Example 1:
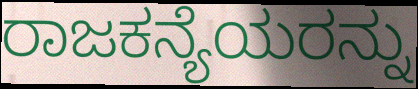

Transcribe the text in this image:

ರಾಜಕನ್ಯೆಯರನ್ನು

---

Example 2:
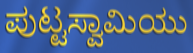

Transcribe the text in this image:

ಪುಟ್ಟಸ್ವಾಮಿಯು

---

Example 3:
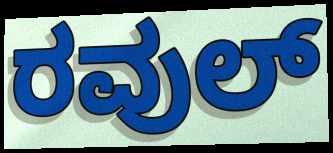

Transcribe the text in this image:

ರವುಲ್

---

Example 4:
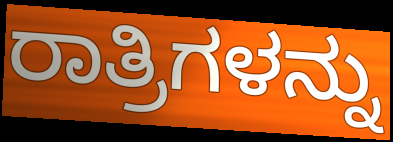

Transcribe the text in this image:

ರಾತ್ರಿಗಳನ್ನು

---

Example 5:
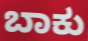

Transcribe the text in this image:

ಬಾಕು